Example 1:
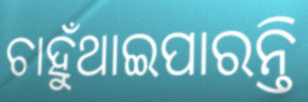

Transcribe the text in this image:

ଚାହୁଁଥାଇପାରନ୍ତି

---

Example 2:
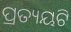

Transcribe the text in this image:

ପ୍ରତ୍ୟୟଟି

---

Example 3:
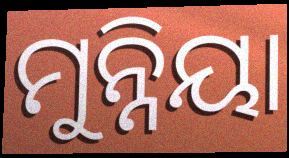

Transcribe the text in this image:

ମୁନ୍ନିୟା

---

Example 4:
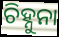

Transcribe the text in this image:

ଚିହ୍ନୁନା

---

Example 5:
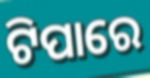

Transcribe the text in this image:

ଟିପାରେ